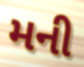
મની